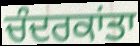
ਚੰਦਰਕਾਂਤਾ